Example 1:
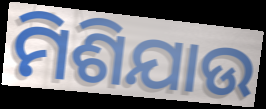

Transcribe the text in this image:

ମିଶିଯାଉ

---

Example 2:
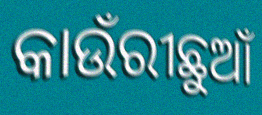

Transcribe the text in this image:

କାଉଁରୀଛୁଆଁ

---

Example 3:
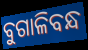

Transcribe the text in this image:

ବୁଗାଳିବନ୍ଧ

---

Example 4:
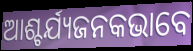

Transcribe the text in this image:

ଆଶ୍ଚର୍ଯ୍ୟଜନକଭାବେ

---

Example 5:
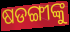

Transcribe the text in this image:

ଷଡଙ୍ଗୀଙ୍କୁ